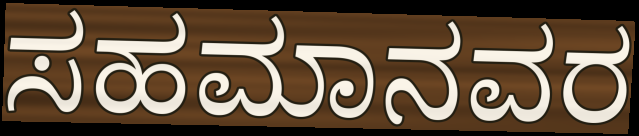
ಸಹಮಾನವರ